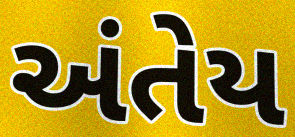
અંતેય